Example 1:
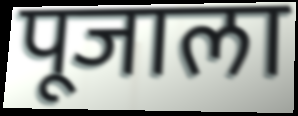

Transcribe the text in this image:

पूजाला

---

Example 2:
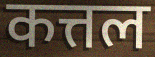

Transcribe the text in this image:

कत्तल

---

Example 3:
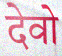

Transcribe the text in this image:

देवो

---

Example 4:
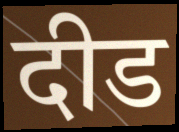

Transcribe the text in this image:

दीड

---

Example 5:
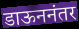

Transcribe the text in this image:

डाऊननंतर